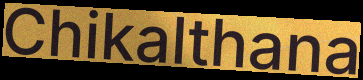
Chikalthana